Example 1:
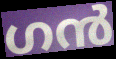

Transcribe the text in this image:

ഗൻ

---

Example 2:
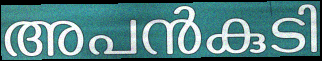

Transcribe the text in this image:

അപൻകുടി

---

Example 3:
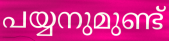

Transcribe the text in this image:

പയ്യനുമുണ്ട്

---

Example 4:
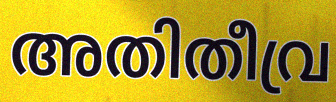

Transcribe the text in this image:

അതിതീവ്ര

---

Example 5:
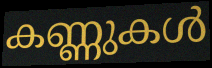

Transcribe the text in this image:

കണ്ണുകൾ